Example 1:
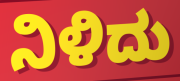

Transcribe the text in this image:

ನಿಳಿದು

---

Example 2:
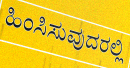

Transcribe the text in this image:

ಹಿಂಸಿಸುವುದರಲ್ಲಿ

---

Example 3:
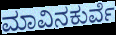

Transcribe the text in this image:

ಮಾವಿನಕುರ್ವೆ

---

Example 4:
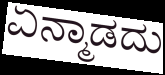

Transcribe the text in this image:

ಏನ್ಮಾಡದು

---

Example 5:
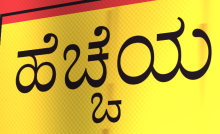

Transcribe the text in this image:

ಹೆಚ್ಚೆಯ